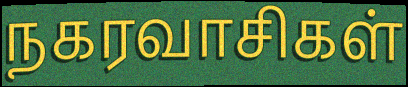
நகரவாசிகள்